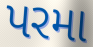
પરમા